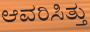
ಆವರಿಸಿತ್ತು